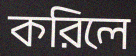
করিলে